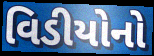
વિડીયોનો